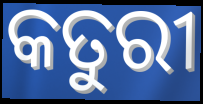
କତୁରୀ